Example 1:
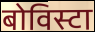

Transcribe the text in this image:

बोविस्टा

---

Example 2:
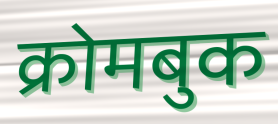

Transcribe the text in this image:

क्रोमबुक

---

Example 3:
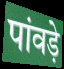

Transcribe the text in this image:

पांवड़े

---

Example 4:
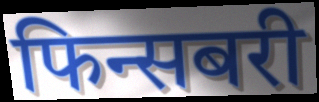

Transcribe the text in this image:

फिन्सबरी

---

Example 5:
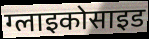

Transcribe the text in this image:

ग्लाइकोसाइड